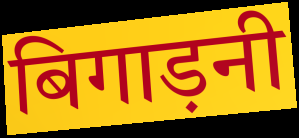
बिगाड़नी